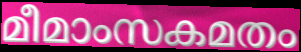
മീമാംസകമതം